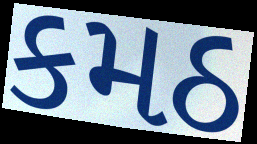
કમઠ